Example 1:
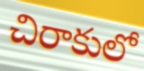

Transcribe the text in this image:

చిరాకులో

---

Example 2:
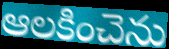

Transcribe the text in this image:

ఆలకించెను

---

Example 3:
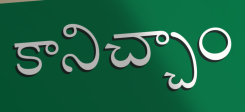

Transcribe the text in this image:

కానిచ్చాం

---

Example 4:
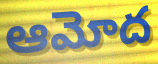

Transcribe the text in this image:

ఆమోద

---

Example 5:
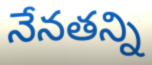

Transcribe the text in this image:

నేనతన్ని